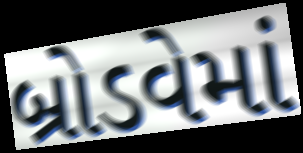
બ્રોડવેમાં